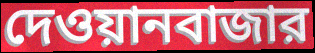
দেওয়ানবাজার